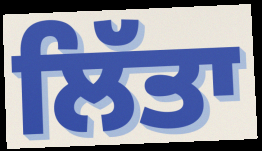
ਲਿੱਤਾ